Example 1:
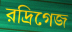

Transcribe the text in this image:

রদ্রিগেজ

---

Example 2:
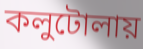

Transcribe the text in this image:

কলুটোলায়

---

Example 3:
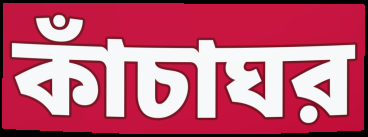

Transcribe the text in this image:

কাঁচাঘর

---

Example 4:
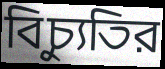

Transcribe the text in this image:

বিচ্যুতির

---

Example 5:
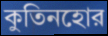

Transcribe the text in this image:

কুতিনহোর